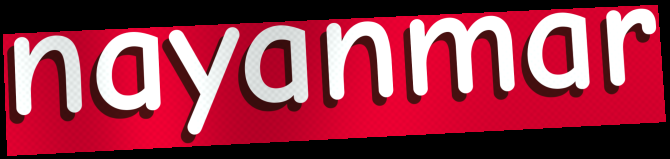
nayanmar